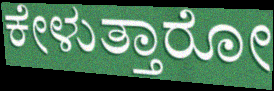
ಕೇಳುತ್ತಾರೋ